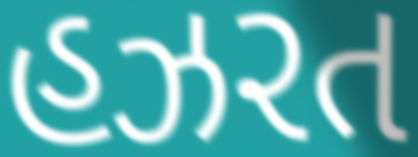
હઝરત